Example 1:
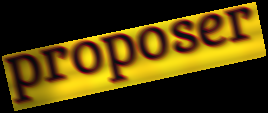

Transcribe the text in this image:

proposer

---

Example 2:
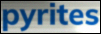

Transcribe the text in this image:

pyrites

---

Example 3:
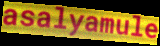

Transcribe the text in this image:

asalyamule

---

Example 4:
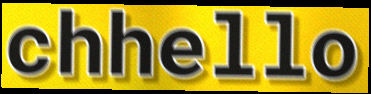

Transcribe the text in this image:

chhello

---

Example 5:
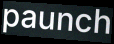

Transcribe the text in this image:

paunch